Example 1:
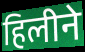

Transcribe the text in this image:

हिलीने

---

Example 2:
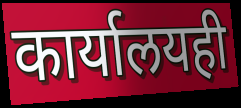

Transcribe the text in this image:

कार्यालयही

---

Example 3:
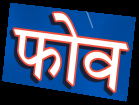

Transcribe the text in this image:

फोव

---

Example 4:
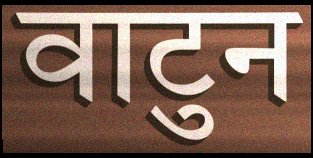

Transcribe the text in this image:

वाटुन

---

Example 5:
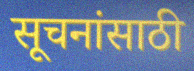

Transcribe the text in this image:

सूचनांसाठी